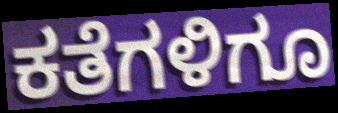
ಕತೆಗಳಿಗೂ